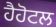
ਹੈਹੋਟਲ